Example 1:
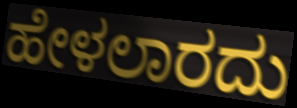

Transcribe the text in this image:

ಹೇಳಲಾರದು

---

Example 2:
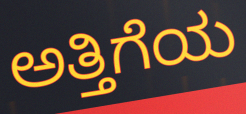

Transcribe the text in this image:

ಅತ್ತಿಗೆಯ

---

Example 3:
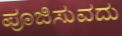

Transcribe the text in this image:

ಪೂಜಿಸುವದು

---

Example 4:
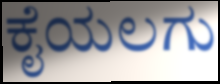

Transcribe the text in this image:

ಕೈಯಲಗು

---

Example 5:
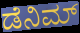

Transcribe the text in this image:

ಡೆನಿಮ್